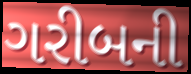
ગરીબની